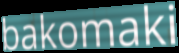
bakomaki